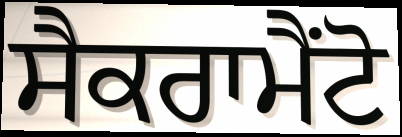
ਸੈਕਰਾਮੈਂਟੋ